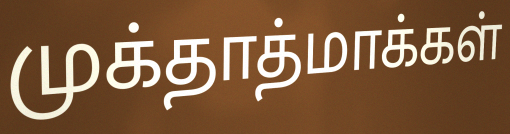
முக்தாத்மாக்கள்